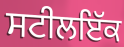
ਸਟੀਲਇੱਕ